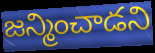
జన్మించాడని